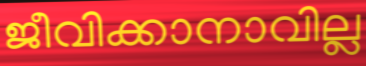
ജീവിക്കാനാവില്ല